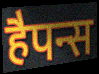
हैपन्स